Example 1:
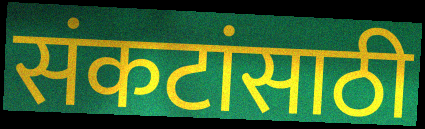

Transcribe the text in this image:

संकटांसाठी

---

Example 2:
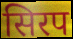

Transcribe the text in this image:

सिरप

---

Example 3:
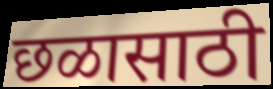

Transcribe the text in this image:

छळासाठी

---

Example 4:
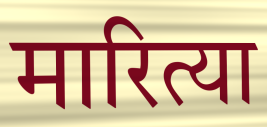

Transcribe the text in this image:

मारित्या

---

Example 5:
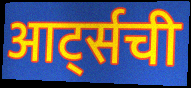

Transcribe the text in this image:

आर्ट्सची